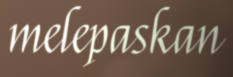
melepaskan